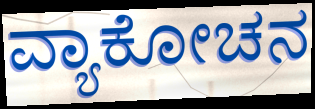
ವ್ಯಾಕೋಚನ